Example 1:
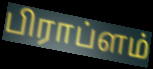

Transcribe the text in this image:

பிராப்ளம்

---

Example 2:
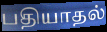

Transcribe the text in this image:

பதியாதல்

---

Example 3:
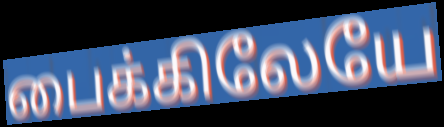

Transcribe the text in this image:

பைக்கிலேயே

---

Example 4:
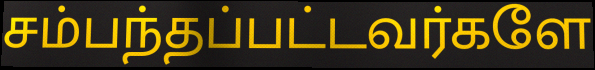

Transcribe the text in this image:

சம்பந்தப்பட்டவர்களே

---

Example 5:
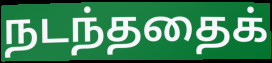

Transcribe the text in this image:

நடந்ததைக்